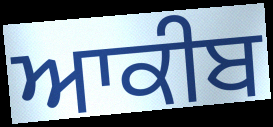
ਆਕੀਬ